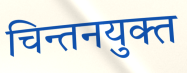
चिन्तनयुक्त